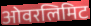
ओवरलिमिट